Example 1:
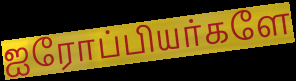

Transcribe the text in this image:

ஐரோப்பியர்களே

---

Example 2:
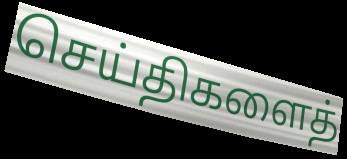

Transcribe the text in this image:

செய்திகளைத்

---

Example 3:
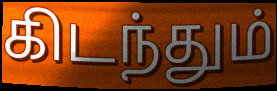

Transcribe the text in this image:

கிடந்தும்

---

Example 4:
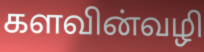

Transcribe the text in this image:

களவின்வழி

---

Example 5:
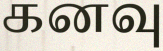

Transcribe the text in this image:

கனவு